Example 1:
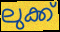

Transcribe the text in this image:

ലുക്ക്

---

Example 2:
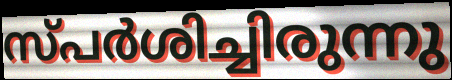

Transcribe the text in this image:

സ്പർശിച്ചിരുന്നു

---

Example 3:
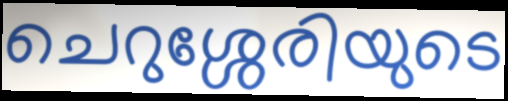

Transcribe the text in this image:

ചെറുശ്ശേരിയുടെ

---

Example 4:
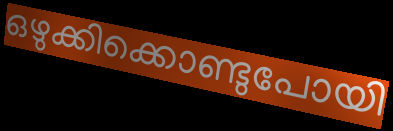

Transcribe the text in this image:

ഒഴുക്കിക്കൊണ്ടുപോയി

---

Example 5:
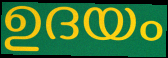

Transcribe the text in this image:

ഉദയം